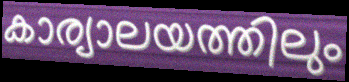
കാര്യാലയത്തിലും